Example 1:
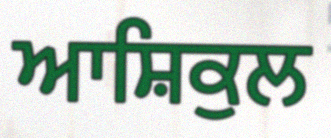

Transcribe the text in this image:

ਆਸ਼ਿਕੁਲ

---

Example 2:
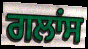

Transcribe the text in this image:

ਗਲਾਂਸ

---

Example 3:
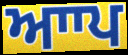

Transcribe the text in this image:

ਆਾਪ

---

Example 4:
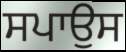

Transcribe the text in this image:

ਸਪਾਉਸ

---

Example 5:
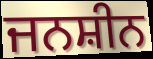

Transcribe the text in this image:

ਜਨਸ਼ੀਨ